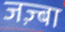
जज़्बा